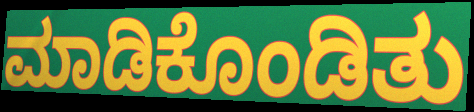
ಮಾಡಿಕೊಂಡಿತು